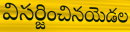
విసర్జించినయెడల